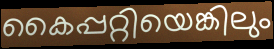
കൈപ്പറ്റിയെങ്കിലും